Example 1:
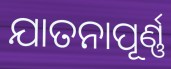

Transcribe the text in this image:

ଯାତନାପୂର୍ଣ୍ଣ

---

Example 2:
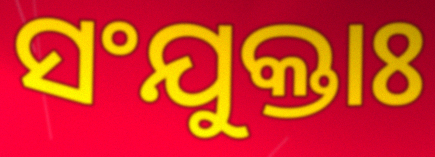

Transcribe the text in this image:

ସଂଯୁକ୍ତାଃ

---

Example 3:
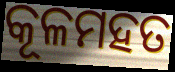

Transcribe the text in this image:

କୂଳମହତ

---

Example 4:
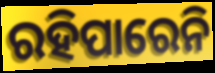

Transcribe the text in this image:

ରହିପାରେନି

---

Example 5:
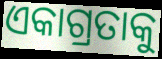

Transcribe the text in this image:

ଏକାଗ୍ରତାକୁ